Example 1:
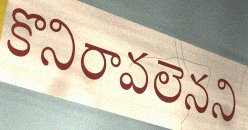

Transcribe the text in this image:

కొనిరావలెనని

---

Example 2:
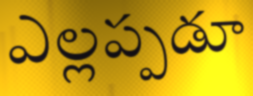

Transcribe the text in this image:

ఎల్లప్పడూ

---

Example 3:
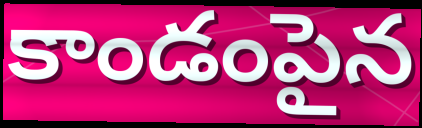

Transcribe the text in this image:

కాండంపైన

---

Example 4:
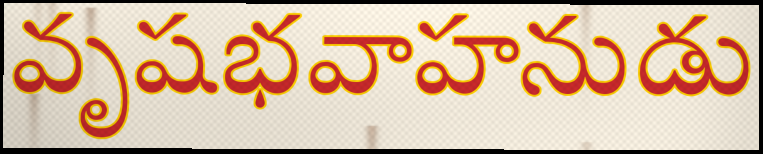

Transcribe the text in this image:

వృషభవాహనుడు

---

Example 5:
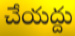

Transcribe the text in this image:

చేయద్దు